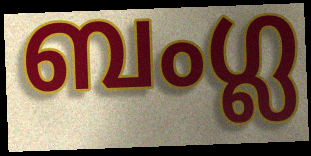
ബംഗ്ല